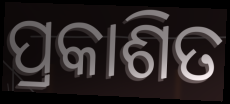
ପ୍ରକାଶିତ